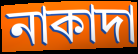
নাকাদা